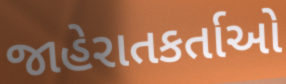
જાહેરાતકર્તાઓ